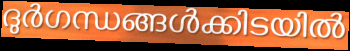
ദുർഗന്ധങ്ങൾക്കിടയിൽ